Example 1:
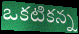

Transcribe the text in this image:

ఒకటికన్న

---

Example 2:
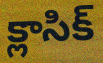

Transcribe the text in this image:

క్లాసిక్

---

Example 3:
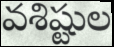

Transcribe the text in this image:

వశిష్టుల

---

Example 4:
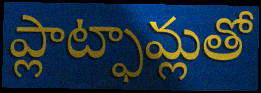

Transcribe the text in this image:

ప్లాట్ఫామ్లతో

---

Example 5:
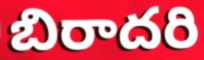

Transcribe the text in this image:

బిరాదరి